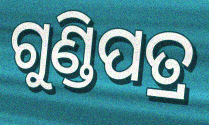
ଗୁଣ୍ଡିପତ୍ର